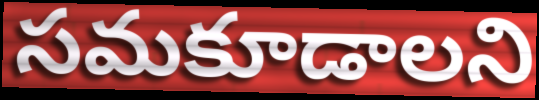
సమకూడాలని